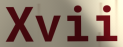
Xvii